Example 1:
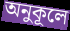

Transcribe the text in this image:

অনুকূলে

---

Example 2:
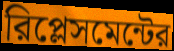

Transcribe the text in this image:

রিপ্লেসমেন্টের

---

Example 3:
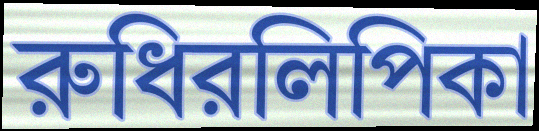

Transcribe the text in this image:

রুধিরলিপিকা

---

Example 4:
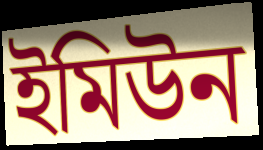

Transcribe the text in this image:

ইমিউন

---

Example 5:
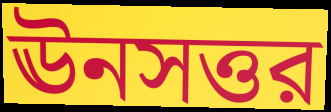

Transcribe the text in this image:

ঊনসত্তর